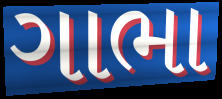
ગાભા